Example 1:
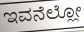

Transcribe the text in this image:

ಇವನೆಲ್ಲೋ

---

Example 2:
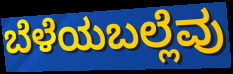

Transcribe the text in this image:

ಬೆಳೆಯಬಲ್ಲೆವು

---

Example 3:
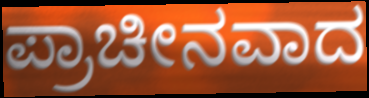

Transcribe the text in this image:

ಪ್ರಾಚೀನವಾದ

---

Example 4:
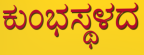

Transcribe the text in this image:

ಕುಂಭಸ್ಥಳದ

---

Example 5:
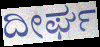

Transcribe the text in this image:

ದೀರ್ಘ